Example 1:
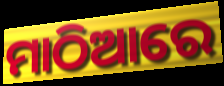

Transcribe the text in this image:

ମାଠିଆରେ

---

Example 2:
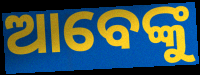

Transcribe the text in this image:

ଆବେଙ୍କୁ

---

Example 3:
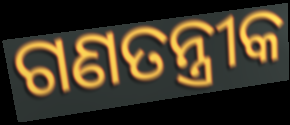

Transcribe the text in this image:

ଗଣତନ୍ତ୍ରୀକ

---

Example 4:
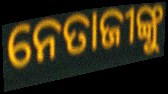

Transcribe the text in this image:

ନେତାଜୀଙ୍କୁ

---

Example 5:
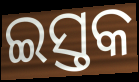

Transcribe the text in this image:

ଇସ୍ତକ